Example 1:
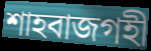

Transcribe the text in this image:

শাহবাজগহী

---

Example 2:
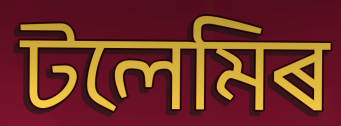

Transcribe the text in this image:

টলেমিৰ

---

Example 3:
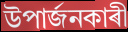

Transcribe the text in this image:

উপাৰ্জনকাৰী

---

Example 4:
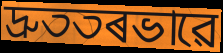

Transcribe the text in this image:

দ্ৰুততৰভাৱে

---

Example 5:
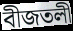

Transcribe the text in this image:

বীজতলী